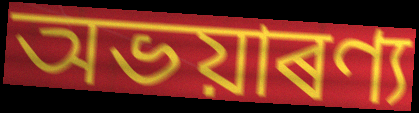
অভয়াৰণ্য